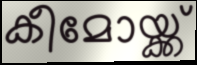
കീമോയ്ക്ക്